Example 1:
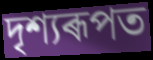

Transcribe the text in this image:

দৃশ্যৰূপত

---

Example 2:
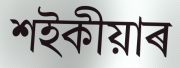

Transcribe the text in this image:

শইকীয়াৰ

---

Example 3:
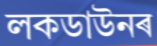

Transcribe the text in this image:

লকডাউনৰ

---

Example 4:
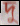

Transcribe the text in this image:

দু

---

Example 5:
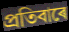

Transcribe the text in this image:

প্ৰতিবাৰে